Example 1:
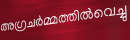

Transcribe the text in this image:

അഗ്രചർമ്മത്തിൽവെച്ചു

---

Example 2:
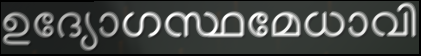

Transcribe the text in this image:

ഉദ്യോഗസ്ഥമേധാവി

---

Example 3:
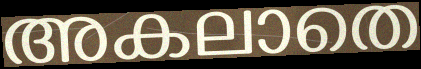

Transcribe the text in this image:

അകലാതെ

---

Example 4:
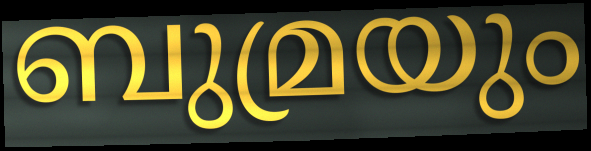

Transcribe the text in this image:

ബുമ്രയും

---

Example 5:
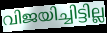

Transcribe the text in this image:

വിജയിച്ചിട്ടില്ല